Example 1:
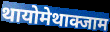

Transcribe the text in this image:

थायोमेथाक्जाम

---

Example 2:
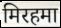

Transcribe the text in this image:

मिरहमा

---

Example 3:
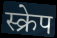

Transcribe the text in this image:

स्क्रेप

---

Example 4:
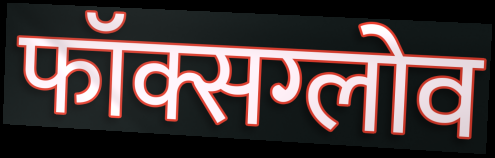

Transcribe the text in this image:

फॉक्सग्लोव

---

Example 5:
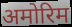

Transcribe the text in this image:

अमोरिम